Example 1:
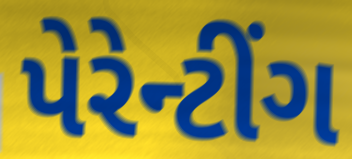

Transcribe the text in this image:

પેરેન્ટીંગ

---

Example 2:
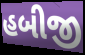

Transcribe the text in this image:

હબીજી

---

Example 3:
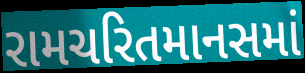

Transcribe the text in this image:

રામચરિતમાનસમાં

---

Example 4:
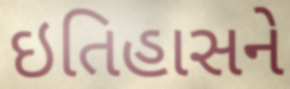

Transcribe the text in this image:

ઇતિહાસને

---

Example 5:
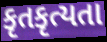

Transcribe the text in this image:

કૃતકૃત્યતા